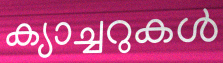
ക്യാച്ചറുകൾ